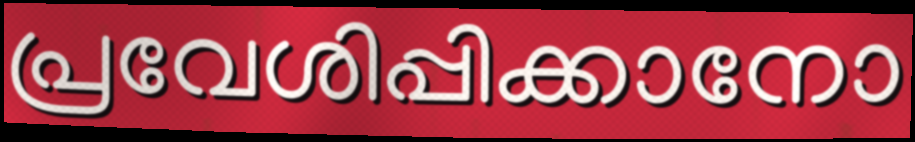
പ്രവേശിപ്പിക്കാനോ